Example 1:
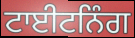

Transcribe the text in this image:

ਟਾਈਟਨਿੰਗ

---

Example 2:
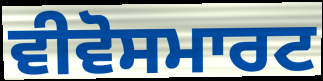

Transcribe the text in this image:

ਵੀਵੋਸਮਾਰਟ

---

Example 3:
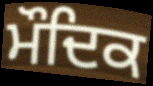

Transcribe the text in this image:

ਮੌਦਿਕ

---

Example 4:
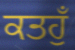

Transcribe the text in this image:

ਕਤਹੁਁ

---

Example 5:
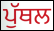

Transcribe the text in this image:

ਪੁੱਥਲ